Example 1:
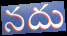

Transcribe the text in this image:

నదు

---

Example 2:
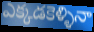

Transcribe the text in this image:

ఎక్కడకెళ్ళినా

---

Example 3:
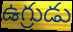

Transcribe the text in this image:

ఉగ్రుడు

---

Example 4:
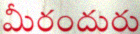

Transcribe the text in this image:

మీరందురు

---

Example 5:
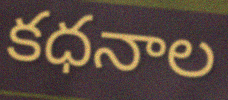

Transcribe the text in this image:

కధనాల